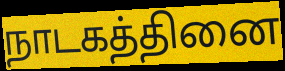
நாடகத்தினை